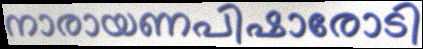
നാരായണപിഷാരോടി